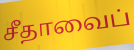
சீதாவைப்